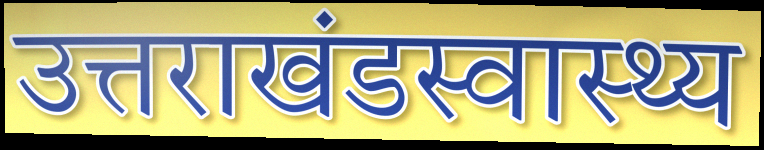
उत्तराखंडस्वास्थ्य